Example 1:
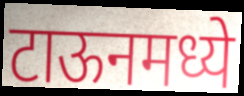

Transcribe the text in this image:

टाऊनमध्ये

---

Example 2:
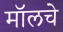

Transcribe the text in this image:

मॉलचे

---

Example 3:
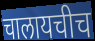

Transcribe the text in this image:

चालायचीच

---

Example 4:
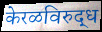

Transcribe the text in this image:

केरळविरुद्ध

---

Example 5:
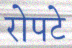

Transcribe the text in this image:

रोपटे